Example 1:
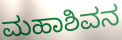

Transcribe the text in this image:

ಮಹಾಶಿವನ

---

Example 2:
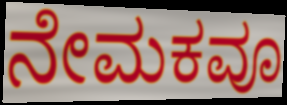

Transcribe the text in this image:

ನೇಮಕವೂ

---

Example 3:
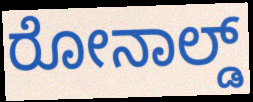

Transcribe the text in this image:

ರೋನಾಲ್ಡ್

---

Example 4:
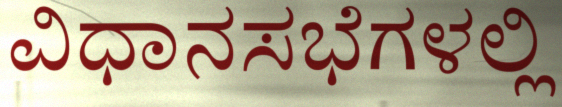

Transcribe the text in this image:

ವಿಧಾನಸಭೆಗಳಲ್ಲಿ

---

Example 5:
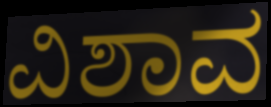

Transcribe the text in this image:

ವಿಶಾವ